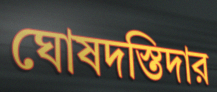
ঘোষদস্তিদার